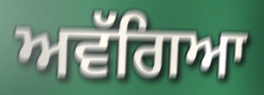
ਅਵੱਗਿਆ